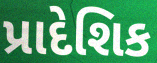
પ્રાદેશિક